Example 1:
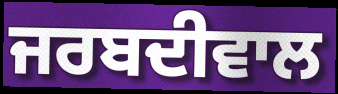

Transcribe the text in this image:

ਜਰਬਦੀਵਾਲ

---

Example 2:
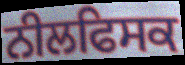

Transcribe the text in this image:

ਨੀਲਫਿਸਕ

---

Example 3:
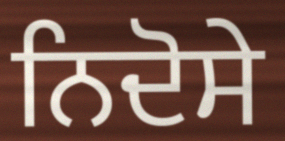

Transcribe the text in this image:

ਨਿਦੋਸੇ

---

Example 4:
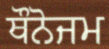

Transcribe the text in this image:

ਥੌਨੋਜਮ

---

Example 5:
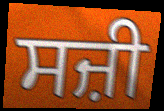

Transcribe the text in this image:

ਸਜ਼ੀ